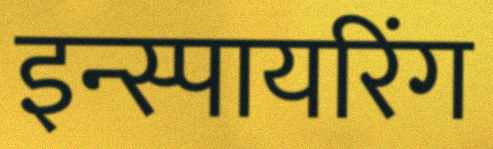
इन्स्पायरिंग